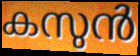
കസുൻ